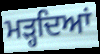
ਮੜ੍ਹਦਿਆਂ